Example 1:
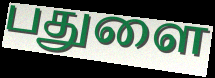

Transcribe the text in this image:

பதுளை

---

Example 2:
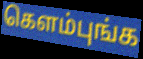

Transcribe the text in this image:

கெளம்புங்க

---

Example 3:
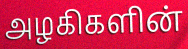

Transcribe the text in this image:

அழகிகளின்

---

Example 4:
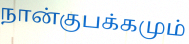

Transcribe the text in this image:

நான்குபக்கமும்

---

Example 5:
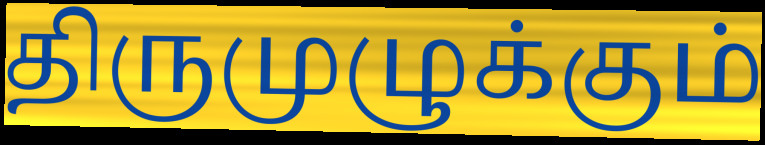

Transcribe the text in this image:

திருமுழுக்கும்